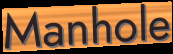
Manhole